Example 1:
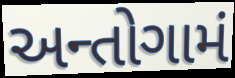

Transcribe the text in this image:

અન્તોગામં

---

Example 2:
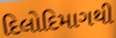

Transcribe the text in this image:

દિલોદિમાગથી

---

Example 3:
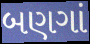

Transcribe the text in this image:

બણગાં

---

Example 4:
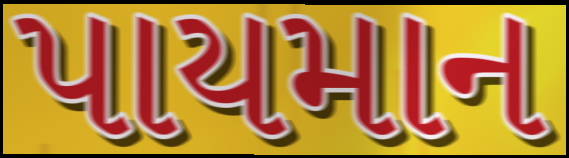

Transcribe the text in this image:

પાયમાન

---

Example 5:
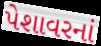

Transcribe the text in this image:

પેશાવરનાં